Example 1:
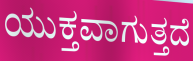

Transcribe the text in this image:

ಯುಕ್ತವಾಗುತ್ತದೆ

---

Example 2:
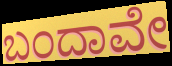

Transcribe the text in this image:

ಬಂದಾವೇ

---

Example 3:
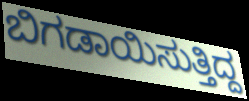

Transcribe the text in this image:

ಬಿಗಡಾಯಿಸುತ್ತಿದ್ದ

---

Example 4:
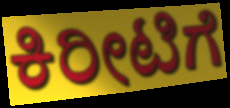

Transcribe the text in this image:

ಕಿರೀಟಿಗೆ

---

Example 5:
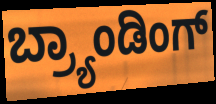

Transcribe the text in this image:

ಬ್ರ್ಯಾಂಡಿಂಗ್